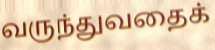
வருந்துவதைக்